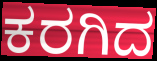
ಕರಗಿದ